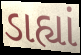
ડાહ્યાં